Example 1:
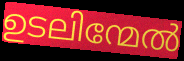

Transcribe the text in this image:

ഉടലിന്മേൽ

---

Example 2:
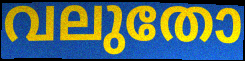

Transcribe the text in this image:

വലുതോ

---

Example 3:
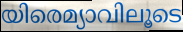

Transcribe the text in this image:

യിരെമ്യാവിലൂടെ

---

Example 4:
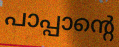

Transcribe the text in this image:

പാപ്പാന്റെ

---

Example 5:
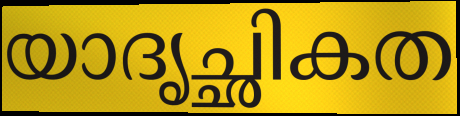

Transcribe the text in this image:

യാദൃച്ഛികത